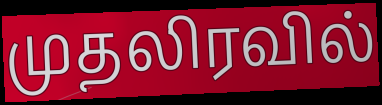
முதலிரவில்